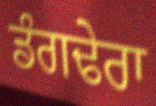
ਡੰਗਢੇਰਾ